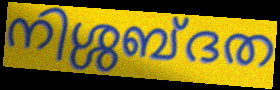
നിശ്ശബ്ദത